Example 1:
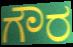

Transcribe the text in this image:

ಗೌರ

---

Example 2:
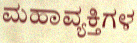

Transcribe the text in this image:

ಮಹಾವ್ಯಕ್ತಿಗಳ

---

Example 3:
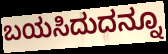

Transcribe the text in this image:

ಬಯಸಿದುದನ್ನೂ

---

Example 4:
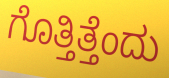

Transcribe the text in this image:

ಗೊತ್ತಿತ್ತೆಂದು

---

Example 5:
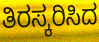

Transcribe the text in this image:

ತಿರಸ್ಕರಿಸಿದ